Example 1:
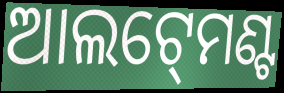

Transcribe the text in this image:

ଆଲଟ୍‍ମେଣ୍ଟ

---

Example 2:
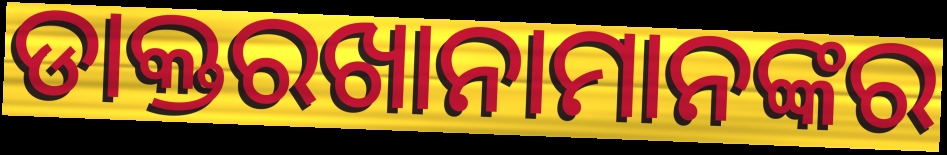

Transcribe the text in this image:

ଡାକ୍ତରଖାନାମାନଙ୍କର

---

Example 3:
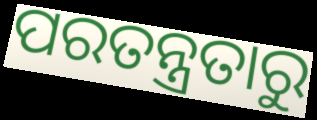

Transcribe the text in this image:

ପରତନ୍ତ୍ରତାରୁ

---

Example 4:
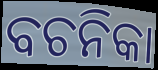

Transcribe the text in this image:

ବଚନିକା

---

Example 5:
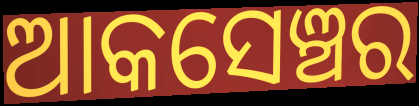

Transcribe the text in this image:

ଆକସେଞ୍ଚର